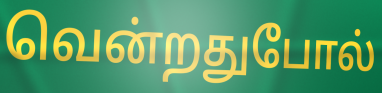
வென்றதுபோல்